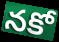
నకో